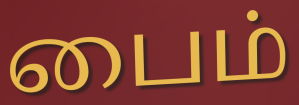
பைம்